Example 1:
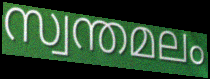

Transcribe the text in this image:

സ്വന്തമലം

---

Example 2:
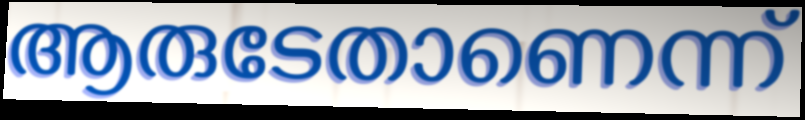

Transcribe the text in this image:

ആരുടേതാണെന്ന്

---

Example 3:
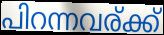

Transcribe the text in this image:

പിറന്നവര്ക്ക്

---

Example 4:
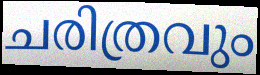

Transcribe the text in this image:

ചരിത്രവും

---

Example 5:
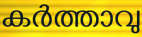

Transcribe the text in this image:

കർത്താവു